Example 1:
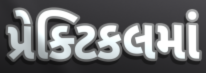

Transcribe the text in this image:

પ્રેક્ટિકલમાં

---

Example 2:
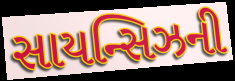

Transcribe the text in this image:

સાયન્સિઝની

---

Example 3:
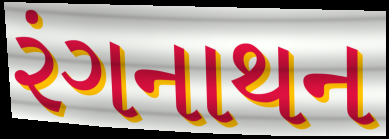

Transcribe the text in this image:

રંગનાથન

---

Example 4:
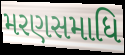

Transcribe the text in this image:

મરણસમાધિ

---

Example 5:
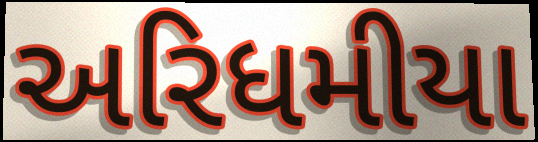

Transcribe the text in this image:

અરિધમીયા